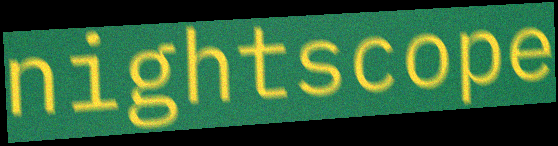
nightscope